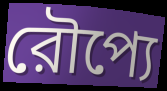
রৌপ্যে